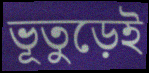
ভূতুড়েই